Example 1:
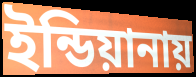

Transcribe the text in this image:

ইন্ডিয়ানায়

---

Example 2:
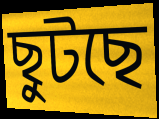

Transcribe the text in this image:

ছুটছে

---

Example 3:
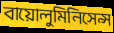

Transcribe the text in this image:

বায়োলুমিনিসেন্স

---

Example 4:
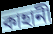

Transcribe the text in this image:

কাহানী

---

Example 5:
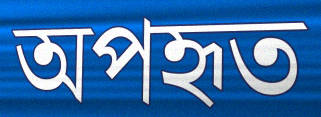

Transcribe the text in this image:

অপহৃত